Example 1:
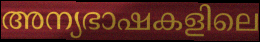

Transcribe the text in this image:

അന്യഭാഷകളിലെ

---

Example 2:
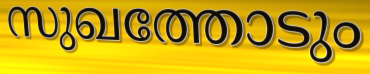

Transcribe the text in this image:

സുഖത്തോടും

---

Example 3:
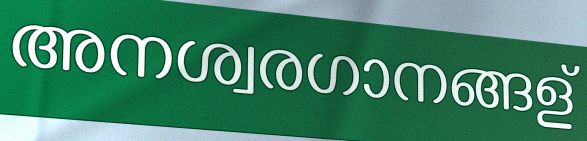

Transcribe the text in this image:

അനശ്വരഗാനങ്ങള്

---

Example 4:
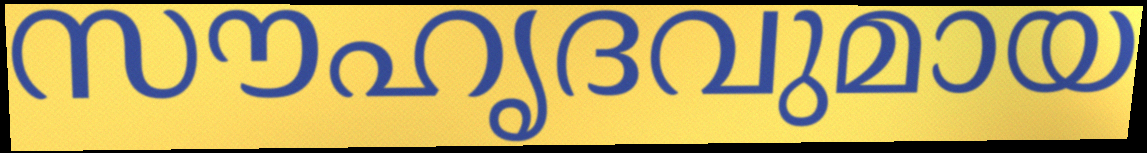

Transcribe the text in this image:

സൗഹൃദവുമായ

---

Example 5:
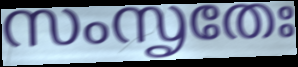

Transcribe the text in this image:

സംസൃതേഃ